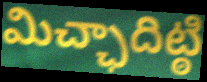
మిచ్ఛాదిట్ఠి